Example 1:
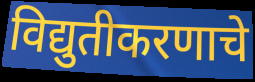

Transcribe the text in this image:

विद्युतीकरणाचे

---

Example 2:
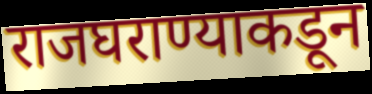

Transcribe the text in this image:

राजघराण्याकडून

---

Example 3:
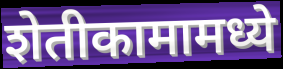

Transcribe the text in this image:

शेतीकामामध्ये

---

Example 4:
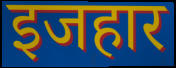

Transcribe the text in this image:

इजहार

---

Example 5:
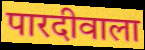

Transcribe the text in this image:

पारदीवाला